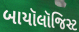
બાયૉલૉજિસ્ટ